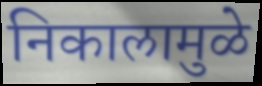
निकालामुळे